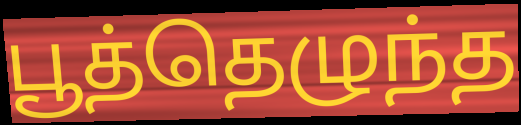
பூத்தெழுந்த